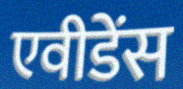
एवीडेंस